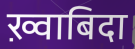
ख़्वाबिदा